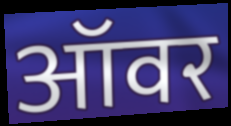
ऑवर